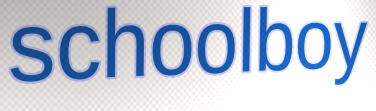
schoolboy